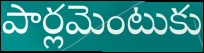
పార్లమెంటుకు